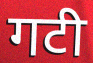
गटी